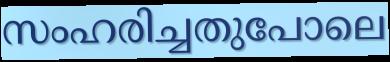
സംഹരിച്ചതുപോലെ